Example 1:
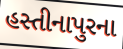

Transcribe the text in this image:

હસ્તીનાપુરના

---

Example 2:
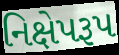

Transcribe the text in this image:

નિક્ષેપરૂપ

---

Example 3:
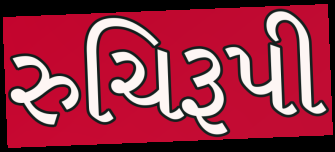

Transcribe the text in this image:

રુચિરૂપી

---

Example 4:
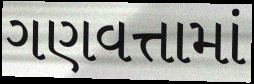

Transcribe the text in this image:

ગણવત્તામાં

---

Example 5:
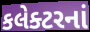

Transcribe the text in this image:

કલેક્ટરનાં